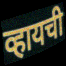
व्हायची